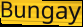
Bungay